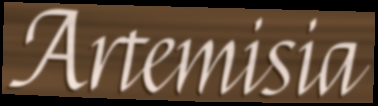
Artemisia